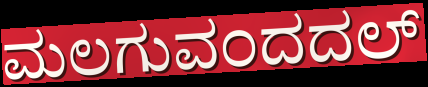
ಮಲಗುವಂದದಲ್